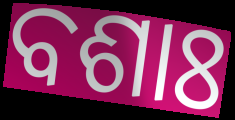
ବଶାଃ